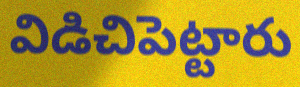
విడిచిపెట్టారు